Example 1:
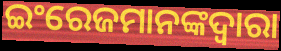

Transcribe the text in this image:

ଇଂରେଜମାନଙ୍କଦ୍ୱାରା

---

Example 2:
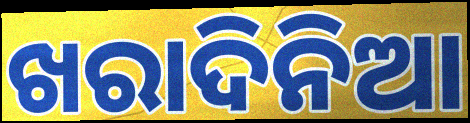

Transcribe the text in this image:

ଖରାଦିନିଆ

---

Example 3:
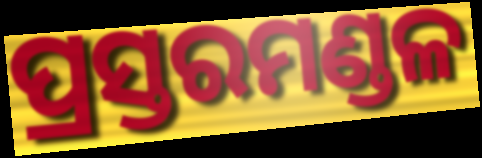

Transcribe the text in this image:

ପ୍ରସ୍ତରମଣ୍ଡଳ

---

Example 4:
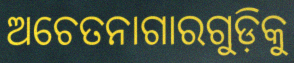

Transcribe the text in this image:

ଅଚେତନାଗାରଗୁଡ଼ିକୁ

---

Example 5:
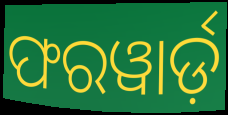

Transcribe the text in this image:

ଫରୱାର୍ଡ଼